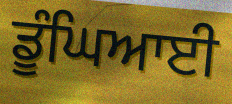
ਡੂੰਘਿਆਈ